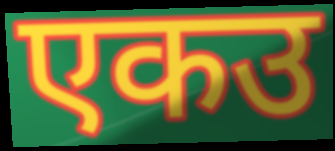
एकउ